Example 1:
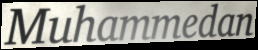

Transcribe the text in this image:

Muhammedan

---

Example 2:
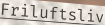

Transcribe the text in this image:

Friluftsliv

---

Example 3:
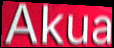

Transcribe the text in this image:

Akua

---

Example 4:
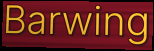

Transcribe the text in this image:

Barwing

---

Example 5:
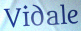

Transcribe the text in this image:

Vidale